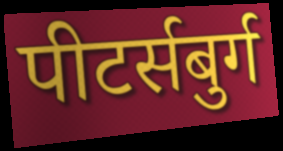
पीटर्सबुर्ग